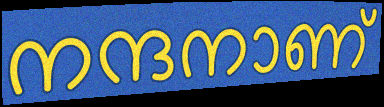
നന്ദനാണ്